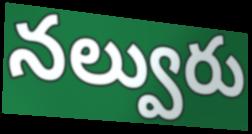
నల్వురు